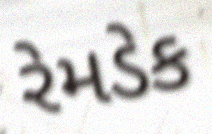
રેમડેક